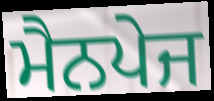
ਮੈਨਪੇਜ